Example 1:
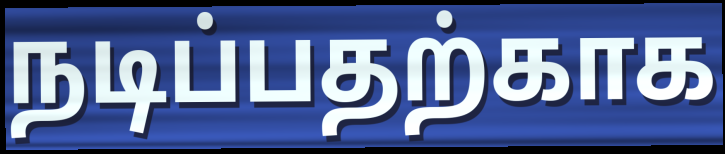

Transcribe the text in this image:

நடிப்பதற்காக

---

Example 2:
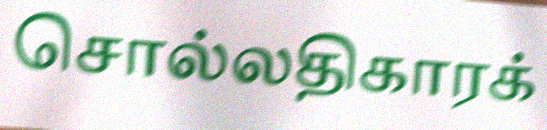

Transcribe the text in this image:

சொல்லதிகாரக்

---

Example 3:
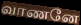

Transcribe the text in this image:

வாணனே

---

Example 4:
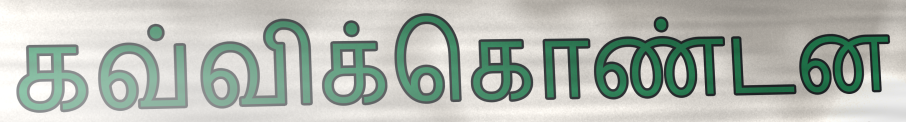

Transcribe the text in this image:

கவ்விக்கொண்டன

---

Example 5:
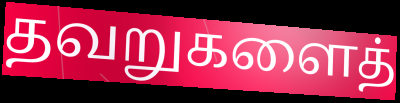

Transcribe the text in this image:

தவறுகளைத்